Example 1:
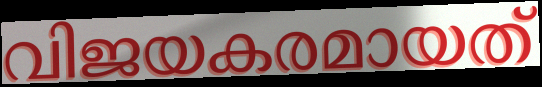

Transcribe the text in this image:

വിജയകരമായത്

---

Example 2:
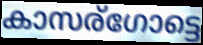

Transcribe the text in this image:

കാസര്ഗോട്ടെ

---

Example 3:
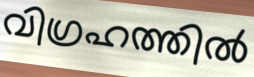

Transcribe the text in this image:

വിഗ്രഹത്തിൽ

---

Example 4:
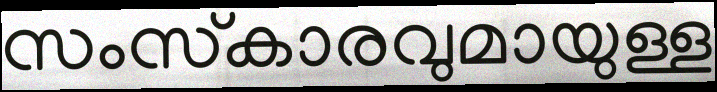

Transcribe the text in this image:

സംസ്‌കാരവുമായുള്ള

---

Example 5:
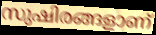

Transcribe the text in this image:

സുഷിരങ്ങളാണ്